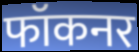
फॉकनर